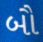
બૌ